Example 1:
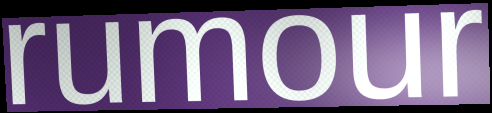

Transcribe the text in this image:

rumour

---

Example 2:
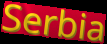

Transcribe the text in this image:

Serbia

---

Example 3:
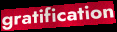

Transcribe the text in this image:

gratification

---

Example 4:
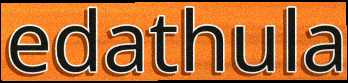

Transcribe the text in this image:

edathula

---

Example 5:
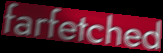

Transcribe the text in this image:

farfetched